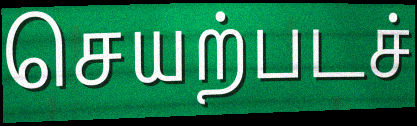
செயற்படச்